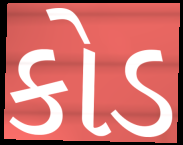
કોડ